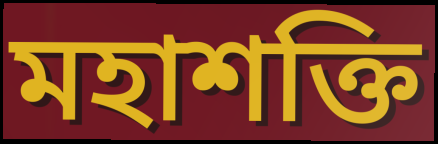
মহাশক্তি